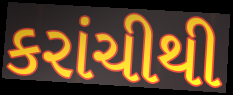
કરાંચીથી